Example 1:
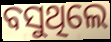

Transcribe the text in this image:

ବସୁଥିଲେ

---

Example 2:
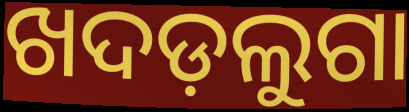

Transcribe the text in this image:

ଖଦଡ଼ଲୁଗା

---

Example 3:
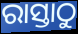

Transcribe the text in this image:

ରାସ୍ତାଠୁ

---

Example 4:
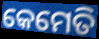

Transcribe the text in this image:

କେମେତି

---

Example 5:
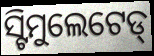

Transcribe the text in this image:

ସ୍ଟିମୁଲେଟେଡ୍